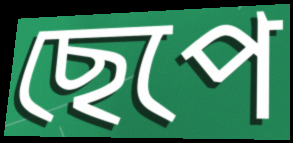
ছেপে